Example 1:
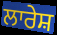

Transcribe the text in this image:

ਲਾਰੇਸ਼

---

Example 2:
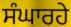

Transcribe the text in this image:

ਸੰਘਾਰਹੇ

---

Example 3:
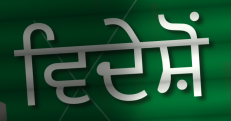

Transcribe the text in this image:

ਵਿਦੇਸ਼ੋਂ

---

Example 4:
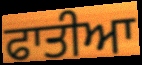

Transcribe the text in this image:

ਫਾਤੀਆ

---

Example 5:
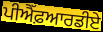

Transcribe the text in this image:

ਪੀਐੱਫ਼ਆਰਡੀਏ